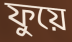
ফুয়ে